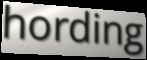
hording